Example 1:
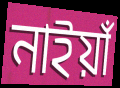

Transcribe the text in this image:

নাইয়াঁ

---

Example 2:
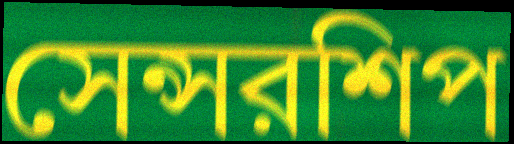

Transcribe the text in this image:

সেন্সরশিপ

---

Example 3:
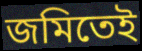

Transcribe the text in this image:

জমিতেই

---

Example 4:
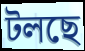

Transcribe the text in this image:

টলছে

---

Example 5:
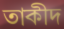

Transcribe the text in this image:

তাকীদ